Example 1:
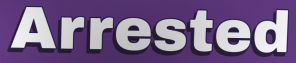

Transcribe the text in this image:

Arrested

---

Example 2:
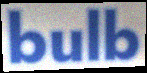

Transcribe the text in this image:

bulb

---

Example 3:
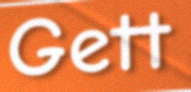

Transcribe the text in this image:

Gett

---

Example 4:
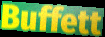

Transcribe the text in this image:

Buffett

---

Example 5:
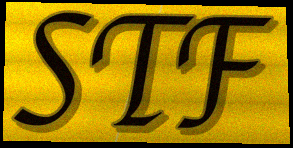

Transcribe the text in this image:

STF